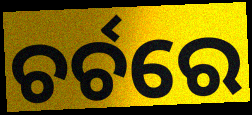
ଚର୍ଚରେ